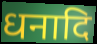
धनादि